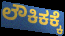
ಲೌಕಿಕಕ್ಕೆ